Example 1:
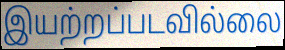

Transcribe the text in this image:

இயற்றப்படவில்லை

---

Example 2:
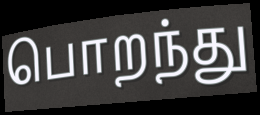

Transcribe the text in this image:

பொறந்து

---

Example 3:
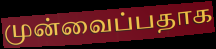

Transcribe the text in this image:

முன்வைப்பதாக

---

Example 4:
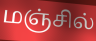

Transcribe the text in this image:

மஞ்சில்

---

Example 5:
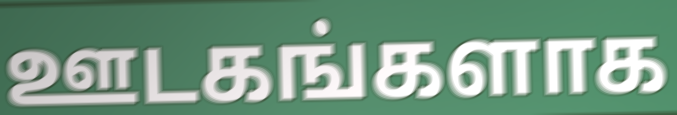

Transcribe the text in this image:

ஊடகங்களாக